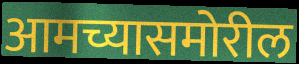
आमच्यासमोरील